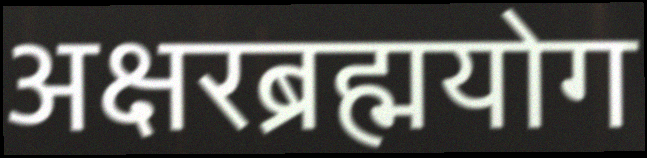
अक्षरब्रह्मयोग